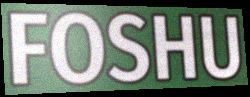
FOSHU